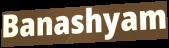
Banashyam